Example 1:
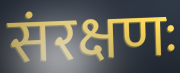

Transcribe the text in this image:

संरक्षणः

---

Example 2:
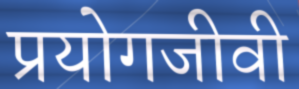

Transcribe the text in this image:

प्रयोगजीवी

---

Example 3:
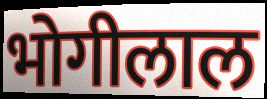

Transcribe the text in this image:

भोगीलाल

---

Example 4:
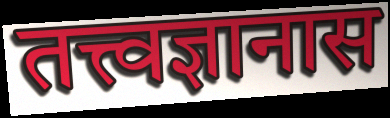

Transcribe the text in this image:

तत्त्वज्ञानास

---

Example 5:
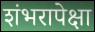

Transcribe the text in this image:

शंभरापेक्षा